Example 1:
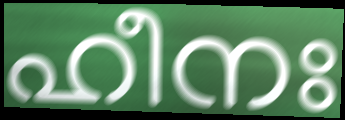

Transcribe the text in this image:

ഹീനഃ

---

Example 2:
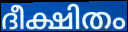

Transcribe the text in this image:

ദീക്ഷിതം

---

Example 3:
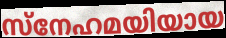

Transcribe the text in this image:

സ്നേഹമയിയായ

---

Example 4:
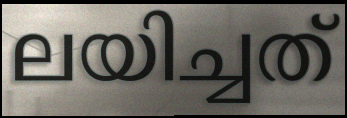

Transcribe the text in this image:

ലയിച്ചത്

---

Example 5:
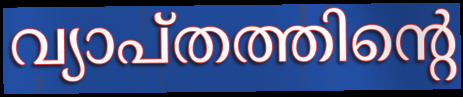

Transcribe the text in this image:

വ്യാപ്തത്തിന്റെ